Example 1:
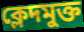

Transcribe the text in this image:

ক্লেদমুক্ত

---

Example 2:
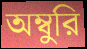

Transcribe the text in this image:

অম্বুরি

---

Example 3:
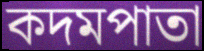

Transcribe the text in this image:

কদমপাতা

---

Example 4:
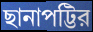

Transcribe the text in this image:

ছানাপট্টির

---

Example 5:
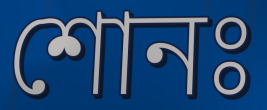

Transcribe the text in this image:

শোনঃ